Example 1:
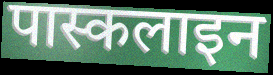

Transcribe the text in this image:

पास्कलाइन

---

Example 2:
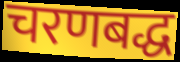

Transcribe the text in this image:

चरणबद्ध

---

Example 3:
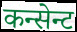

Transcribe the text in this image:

कन्सेन्ट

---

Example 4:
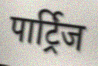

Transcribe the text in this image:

पार्ट्रिज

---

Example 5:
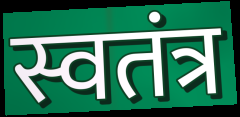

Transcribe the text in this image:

स्‍वतंत्र